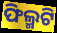
ଫିଲ୍ମଟି